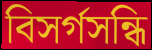
বিসর্গসন্ধি